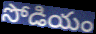
సోడియం